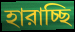
হারাচ্ছি